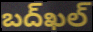
బద్‌ఖల్